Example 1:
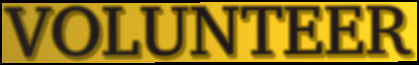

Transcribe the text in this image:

VOLUNTEER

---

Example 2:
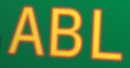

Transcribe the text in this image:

ABL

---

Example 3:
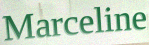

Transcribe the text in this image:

Marceline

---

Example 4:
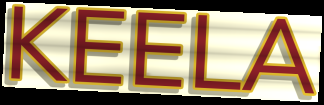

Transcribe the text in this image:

KEELA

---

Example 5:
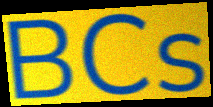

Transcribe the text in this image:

BCs